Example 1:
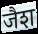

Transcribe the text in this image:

जैश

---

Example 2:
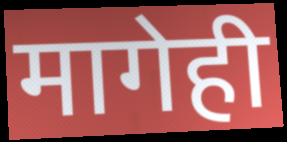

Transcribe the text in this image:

मागेही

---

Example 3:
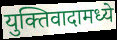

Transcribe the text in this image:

युक्तिवादामध्ये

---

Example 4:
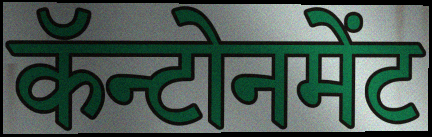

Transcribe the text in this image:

कॅन्टोनमेंट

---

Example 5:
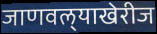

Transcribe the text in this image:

जाणवल्याखेरीज